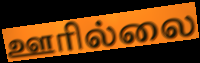
ஊரில்லை